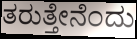
ತರುತ್ತೇನೆಂದು